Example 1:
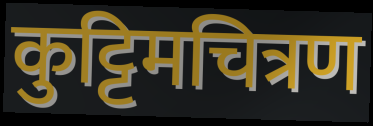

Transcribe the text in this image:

कुट्टिमचित्रण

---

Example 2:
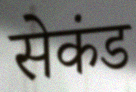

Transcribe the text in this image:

सेकंड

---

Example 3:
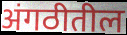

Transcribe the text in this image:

अंगठीतील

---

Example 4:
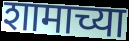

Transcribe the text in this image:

शामाच्या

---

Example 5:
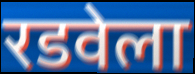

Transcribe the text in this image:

रडवेला